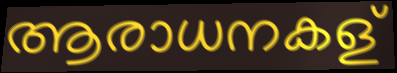
ആരാധനകള്